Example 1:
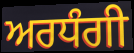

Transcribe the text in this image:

ਅਰਧੰਗੀ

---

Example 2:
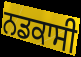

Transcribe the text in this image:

ਨਡਕਾਸੀ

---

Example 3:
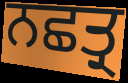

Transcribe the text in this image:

ਨਛਤ੍ਰ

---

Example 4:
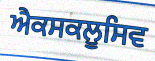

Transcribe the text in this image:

ਐਕਸਕਲੂਸਿਵ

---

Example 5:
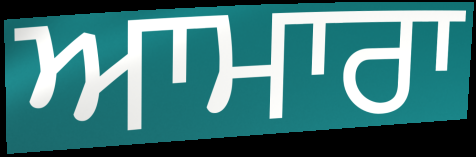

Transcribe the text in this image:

ਆਮਾਰਾ